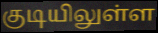
குடியிலுள்ள